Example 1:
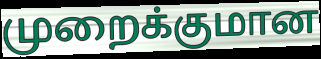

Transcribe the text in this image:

முறைக்குமான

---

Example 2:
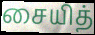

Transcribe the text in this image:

சையித்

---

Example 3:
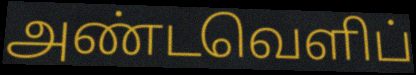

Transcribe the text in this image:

அண்டவெளிப்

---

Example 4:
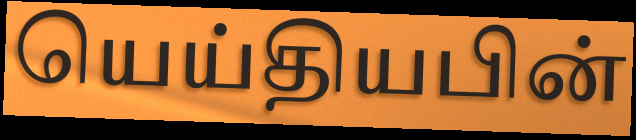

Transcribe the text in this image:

யெய்தியபின்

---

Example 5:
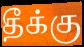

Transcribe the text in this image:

தீக்கு